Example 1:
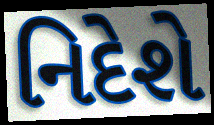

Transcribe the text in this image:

નિદેશે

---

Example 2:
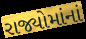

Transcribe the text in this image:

રાજ્યોમાંનાં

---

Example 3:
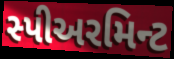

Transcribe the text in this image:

સ્પીઅરમિન્ટ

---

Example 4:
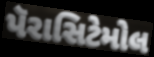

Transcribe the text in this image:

પૅરાસિટેમોલ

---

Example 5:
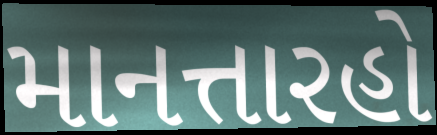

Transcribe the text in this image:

માનત્તારહો